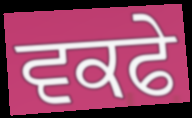
ਵਕਫੇ